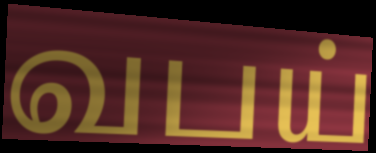
வபய்